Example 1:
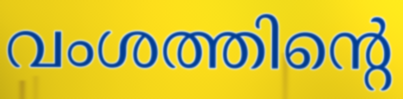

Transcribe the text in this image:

വംശത്തിന്റെ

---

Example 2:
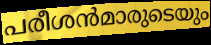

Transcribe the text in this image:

പരീശൻമാരുടെയും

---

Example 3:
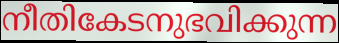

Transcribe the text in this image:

നീതികേടനുഭവിക്കുന്ന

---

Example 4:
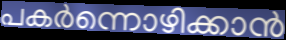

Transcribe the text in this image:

പകർന്നൊഴിക്കാൻ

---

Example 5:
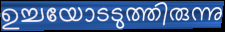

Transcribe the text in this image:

ഉച്ചയോടടുത്തിരുന്നു